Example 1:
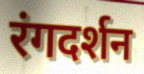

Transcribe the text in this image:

रंगदर्शन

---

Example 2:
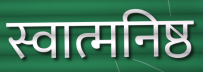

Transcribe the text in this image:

स्वात्मनिष्ठ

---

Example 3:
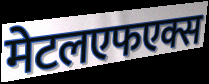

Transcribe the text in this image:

मेटलएफएक्स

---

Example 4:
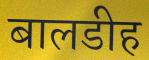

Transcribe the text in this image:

बालडीह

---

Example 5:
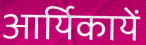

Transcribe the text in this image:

आर्यिकायें